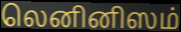
லெனினிஸம்